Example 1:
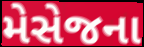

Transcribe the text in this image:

મેસેજના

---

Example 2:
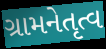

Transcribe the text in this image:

ગ્રામનેતૃત્વ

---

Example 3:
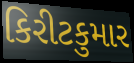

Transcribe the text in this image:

કિરીટકુમાર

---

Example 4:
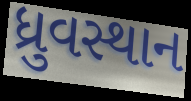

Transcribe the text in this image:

ધ્રુવસ્થાન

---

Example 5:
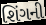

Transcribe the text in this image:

શિંગની